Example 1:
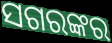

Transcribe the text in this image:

ସଗରଙ୍କର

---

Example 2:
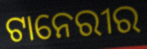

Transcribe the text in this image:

ଟାନେରୀର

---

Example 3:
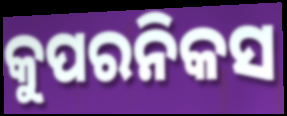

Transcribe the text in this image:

କୁପରନିକସ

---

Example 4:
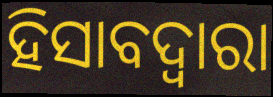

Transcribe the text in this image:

ହିସାବଦ୍ଵାରା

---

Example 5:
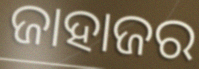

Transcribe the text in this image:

ଜାହାଜର